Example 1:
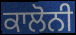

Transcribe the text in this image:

ਕਾਲੋਨੀ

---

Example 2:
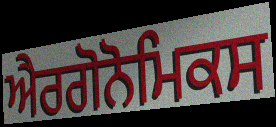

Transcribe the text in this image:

ਐਰਗੋਨੋਮਿਕਸ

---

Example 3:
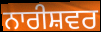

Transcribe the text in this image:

ਨਾਰੀਸ਼ਵਰ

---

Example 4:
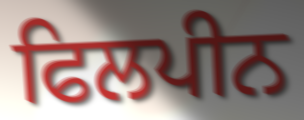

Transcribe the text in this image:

ਫਿਲਪੀਨ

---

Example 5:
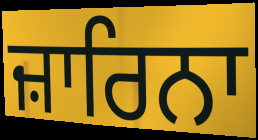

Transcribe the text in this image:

ਜ਼ਾਰਿਨਾ